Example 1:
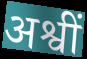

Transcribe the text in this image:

अश्वीं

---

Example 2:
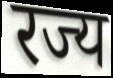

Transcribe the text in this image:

रज्य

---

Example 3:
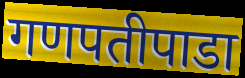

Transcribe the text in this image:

गणपतीपाडा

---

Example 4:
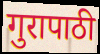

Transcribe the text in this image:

गुरापाठी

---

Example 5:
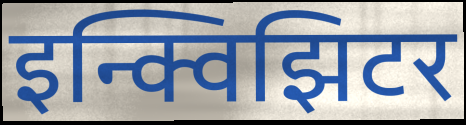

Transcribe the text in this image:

इन्क्विझिटर